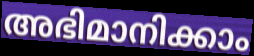
അഭിമാനിക്കാം